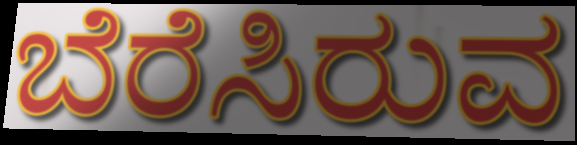
ಬೆರೆಸಿರುವ